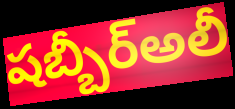
షబ్బీర్అలీ